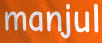
manjul